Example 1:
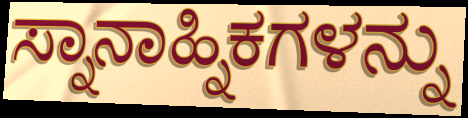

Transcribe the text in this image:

ಸ್ನಾನಾಹ್ನಿಕಗಳನ್ನು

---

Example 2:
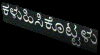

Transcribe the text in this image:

ಕಳುಹಿಸಿಕೊಟ್ಟಳು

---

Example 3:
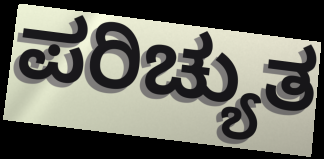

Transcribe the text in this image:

ಪರಿಚ್ಯುತ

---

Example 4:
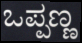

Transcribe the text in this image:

ಒಪ್ಪಣ್ಣ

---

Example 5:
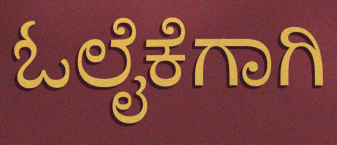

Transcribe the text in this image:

ಓಲೈಕೆಗಾಗಿ